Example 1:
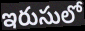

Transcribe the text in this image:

ఇరుసులో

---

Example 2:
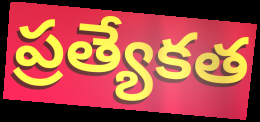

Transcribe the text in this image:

ప్రత్యేకత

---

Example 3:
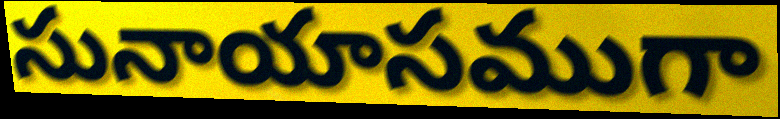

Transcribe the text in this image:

సునాయాసముగా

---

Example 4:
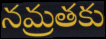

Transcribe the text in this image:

నమ్రతకు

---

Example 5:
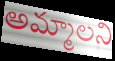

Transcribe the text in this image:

అమ్మాలని